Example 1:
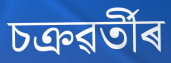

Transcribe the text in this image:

চক্ৰৱৰ্তীৰ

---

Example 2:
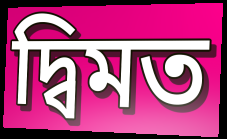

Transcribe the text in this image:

দ্বিমত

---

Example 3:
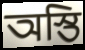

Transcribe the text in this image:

অস্তি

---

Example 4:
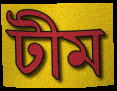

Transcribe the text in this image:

টীম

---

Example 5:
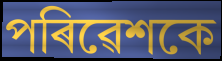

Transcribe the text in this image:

পৰিৱেশকে